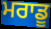
ਮਰਾਡੂ